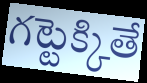
గట్టెక్కితే